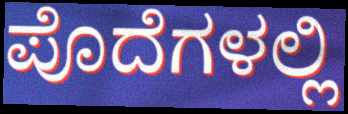
ಪೊದೆಗಳಲ್ಲಿ